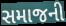
સમાજની